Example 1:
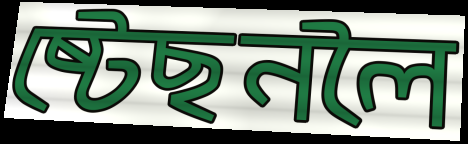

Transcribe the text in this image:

ষ্টেছনলৈ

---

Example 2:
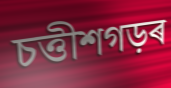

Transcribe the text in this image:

চত্তীশগড়ৰ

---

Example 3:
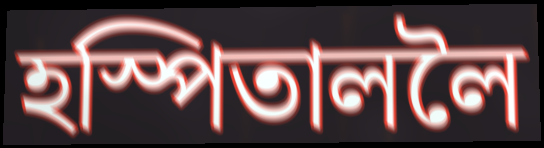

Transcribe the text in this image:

হস্পিতাললৈ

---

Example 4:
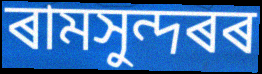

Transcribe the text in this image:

ৰামসুন্দৰৰ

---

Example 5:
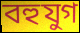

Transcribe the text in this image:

বহুযুগ